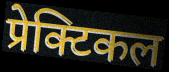
प्रेक्टिकल